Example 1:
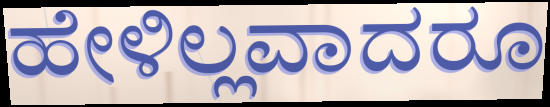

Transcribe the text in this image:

ಹೇಳಿಲ್ಲವಾದರೂ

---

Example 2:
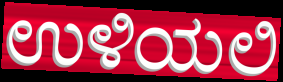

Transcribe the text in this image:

ಉಳಿಯಲಿ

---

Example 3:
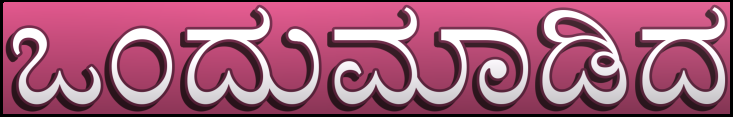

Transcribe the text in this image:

ಒಂದುಮಾಡಿದ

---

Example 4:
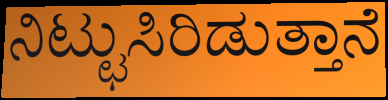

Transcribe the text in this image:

ನಿಟ್ಟುಸಿರಿಡುತ್ತಾನೆ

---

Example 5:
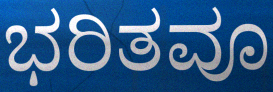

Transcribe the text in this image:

ಭರಿತವೂ